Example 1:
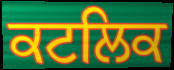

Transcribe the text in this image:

ਕਟਲਿਕ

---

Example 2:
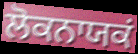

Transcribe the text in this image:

ਲੋਕਨਾਯਕਂ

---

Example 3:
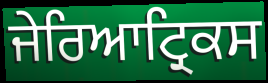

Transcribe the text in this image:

ਜੇਰਿਆਟ੍ਰਿਕਸ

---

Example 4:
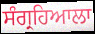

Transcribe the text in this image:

ਸੰਗ੍ਰਹਿਆਲਾ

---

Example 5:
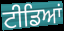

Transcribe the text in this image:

ਟੀਡਿਆਂ